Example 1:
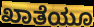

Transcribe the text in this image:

ಖಾತೆಯೂ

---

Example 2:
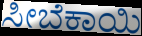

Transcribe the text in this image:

ಸೀಬೆಕಾಯಿ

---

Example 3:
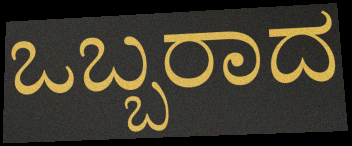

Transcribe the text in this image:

ಒಬ್ಬರಾದ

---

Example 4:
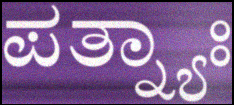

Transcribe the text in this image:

ಪತ್ನ್ಯಾಃ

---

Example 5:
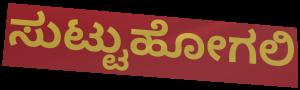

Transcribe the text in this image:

ಸುಟ್ಟುಹೋಗಲಿ